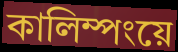
কালিম্পংয়ে